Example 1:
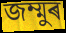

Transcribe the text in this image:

জম্মুৰ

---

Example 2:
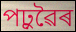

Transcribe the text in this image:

পঢ়ুৱৈৰ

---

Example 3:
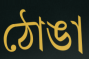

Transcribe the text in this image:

ঠোঙা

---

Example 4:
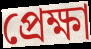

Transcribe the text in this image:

প্ৰেক্ষা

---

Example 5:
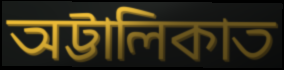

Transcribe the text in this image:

অট্টালিকাত